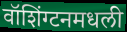
वॉशिंग्टनमधली